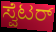
ಸ್ವೆಟರ್